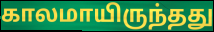
காலமாயிருந்தது